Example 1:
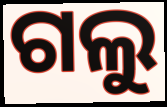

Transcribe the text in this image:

ଗଲୁ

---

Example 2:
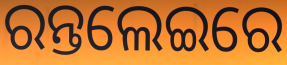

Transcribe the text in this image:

ରନ୍ତଲେଇରେ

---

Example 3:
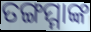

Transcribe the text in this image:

ତଙ୍ଗମ୍ମାଙ୍କ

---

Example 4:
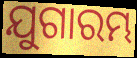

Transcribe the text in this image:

ଯୁଗାରମ୍ଭ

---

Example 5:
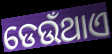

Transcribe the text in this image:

ଡେଉଁଥାଏ